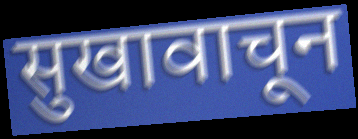
सुखावाचून